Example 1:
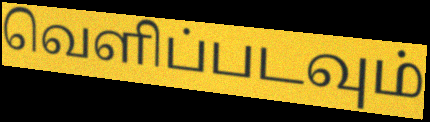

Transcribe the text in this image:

வெளிப்படவும்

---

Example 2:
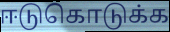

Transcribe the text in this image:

ஈடுகொடுக்க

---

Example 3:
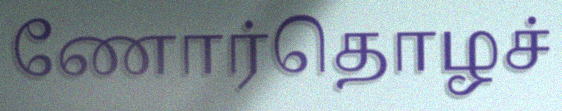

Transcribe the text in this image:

ணோர்தொழச்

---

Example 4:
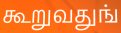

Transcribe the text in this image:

கூறுவதுங்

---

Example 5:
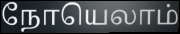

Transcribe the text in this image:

நோயெலாம்